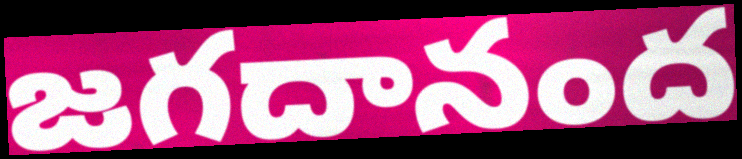
జగదానంద